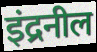
इंद्रनील